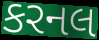
કરનલ